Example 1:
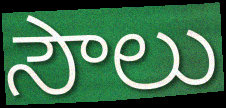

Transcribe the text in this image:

సౌలు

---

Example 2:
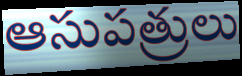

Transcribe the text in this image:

ఆసుపత్రులు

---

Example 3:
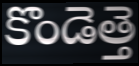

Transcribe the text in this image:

కొండెత్తె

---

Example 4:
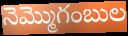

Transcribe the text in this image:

నెమ్మొగంబుల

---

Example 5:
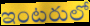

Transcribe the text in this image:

ఇంటరులో